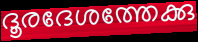
ദൂരദേശത്തേക്കു